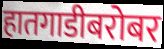
हातगाडीबरोबर